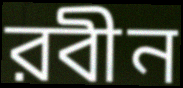
রবীন